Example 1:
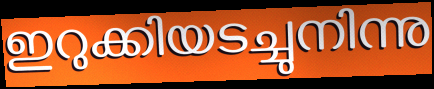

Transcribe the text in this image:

ഇറുക്കിയടച്ചുനിന്നു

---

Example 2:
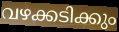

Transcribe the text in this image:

വഴക്കടിക്കും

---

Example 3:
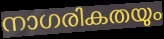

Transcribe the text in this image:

നാഗരികതയും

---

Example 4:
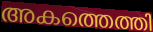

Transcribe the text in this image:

അകത്തെത്തി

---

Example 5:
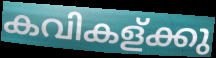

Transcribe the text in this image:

കവികള്ക്കു